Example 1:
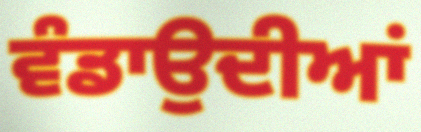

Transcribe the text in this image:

ਵੰਡਾਉਦੀਆਂ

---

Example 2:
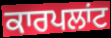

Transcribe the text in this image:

ਕਾਰਪਲਾਂਟ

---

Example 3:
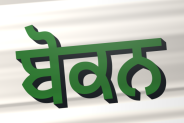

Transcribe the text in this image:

ਬੋਕਨ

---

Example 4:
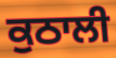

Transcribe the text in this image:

ਕੁਠਾਲੀ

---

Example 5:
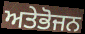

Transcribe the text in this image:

ਅਤੇਭੋਜਨ